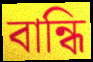
বান্ধি